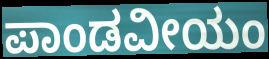
ಪಾಂಡವೀಯಂ